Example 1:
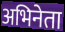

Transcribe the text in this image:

अभिनेता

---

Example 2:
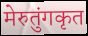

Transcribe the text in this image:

मेरुतुंगकृत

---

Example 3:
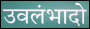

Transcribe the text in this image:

उवलंभादो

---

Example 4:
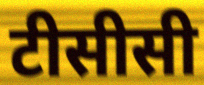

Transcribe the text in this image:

टीसीसी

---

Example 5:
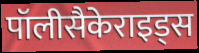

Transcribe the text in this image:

पॉलीसैकेराइड्स